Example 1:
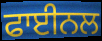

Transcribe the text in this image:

ਫਾਈਨਲ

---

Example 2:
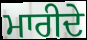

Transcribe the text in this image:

ਮਾਰੀਦੇ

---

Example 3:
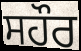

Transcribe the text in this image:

ਸਹੌਰ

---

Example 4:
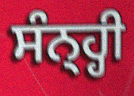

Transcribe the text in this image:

ਸੰਨ੍ਹ੍ਹੀ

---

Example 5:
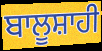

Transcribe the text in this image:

ਬਾਲੂਸ਼ਾਹੀ